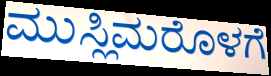
ಮುಸ್ಲಿಮರೊಳಗೆ